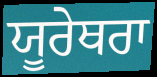
ਯੂਰੇਥਰਾ